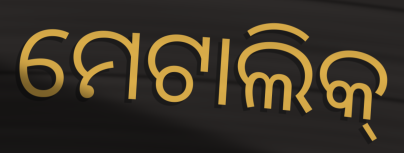
ମେଟାଲିକ୍